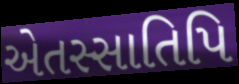
એતસ્સાતિપિ